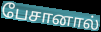
பேசானால்